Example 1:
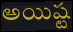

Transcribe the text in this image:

అయిష్ట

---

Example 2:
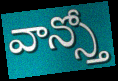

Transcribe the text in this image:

వాన్స్తో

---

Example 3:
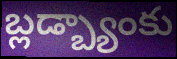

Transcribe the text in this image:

బ్లడ్బ్యాంకు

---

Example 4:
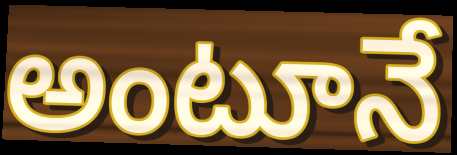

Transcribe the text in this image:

అంటూనే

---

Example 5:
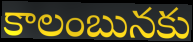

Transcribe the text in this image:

కాలంబునకు